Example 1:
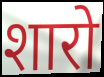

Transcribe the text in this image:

शारो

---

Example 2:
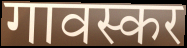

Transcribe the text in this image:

गावस्कर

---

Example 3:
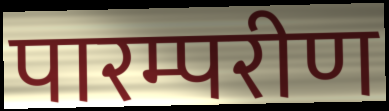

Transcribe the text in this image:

पारम्परीण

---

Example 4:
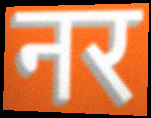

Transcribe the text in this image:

नर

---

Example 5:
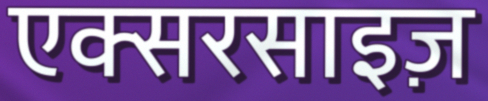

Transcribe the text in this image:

एक्सरसाइज़